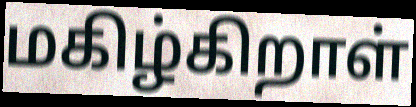
மகிழ்கிறாள்